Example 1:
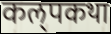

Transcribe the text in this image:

कल्पकथा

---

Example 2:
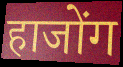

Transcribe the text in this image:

हाजोंग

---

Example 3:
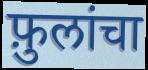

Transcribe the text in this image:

फ़ुलांचा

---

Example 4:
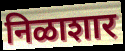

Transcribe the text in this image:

निळाशार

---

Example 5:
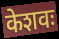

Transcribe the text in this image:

केशवः